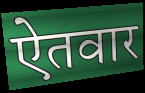
ऐतवार